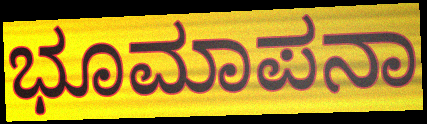
ಭೂಮಾಪನಾ